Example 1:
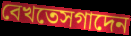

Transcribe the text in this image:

বেখতেসগাদেন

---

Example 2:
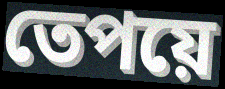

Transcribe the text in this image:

তেপয়ে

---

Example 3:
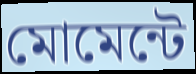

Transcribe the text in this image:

মোমেন্টে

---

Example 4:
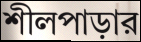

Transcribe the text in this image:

শীলপাড়ার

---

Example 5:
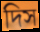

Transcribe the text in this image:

দিস